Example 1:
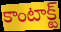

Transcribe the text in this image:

కాంటాక్ట్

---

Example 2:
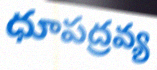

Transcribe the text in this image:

ధూపద్రవ్య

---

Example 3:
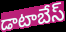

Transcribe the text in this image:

డాటాబేస్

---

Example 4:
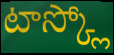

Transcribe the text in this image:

టాస్క్లో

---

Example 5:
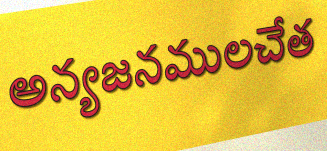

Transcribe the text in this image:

అన్యజనములచేత